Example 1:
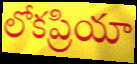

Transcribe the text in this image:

లోకప్రియా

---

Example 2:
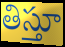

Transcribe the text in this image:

తిస్తూ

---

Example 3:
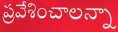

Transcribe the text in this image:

ప్రవేశించాలన్నా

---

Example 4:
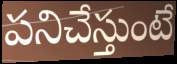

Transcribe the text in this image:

పనిచేస్తుంటే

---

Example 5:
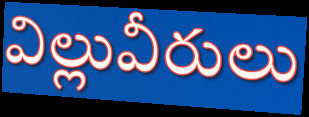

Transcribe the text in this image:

విల్లువీరులు